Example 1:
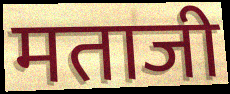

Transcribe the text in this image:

मताजी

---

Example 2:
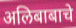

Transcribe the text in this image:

अलिबाबाचे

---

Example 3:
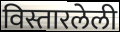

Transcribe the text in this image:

विस्तारलेली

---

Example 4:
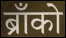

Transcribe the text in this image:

ब्राँको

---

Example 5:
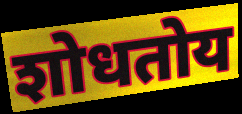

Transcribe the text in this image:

शोधतोय